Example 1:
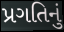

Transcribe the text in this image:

પ્રગતિનું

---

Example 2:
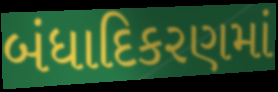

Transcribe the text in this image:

બંધાદિકરણમાં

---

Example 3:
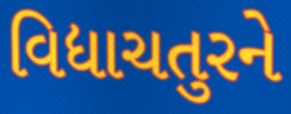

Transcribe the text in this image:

વિદ્યાચતુરને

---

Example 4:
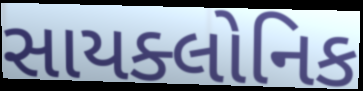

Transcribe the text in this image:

સાયક્લોનિક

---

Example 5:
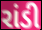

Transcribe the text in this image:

રાંડી